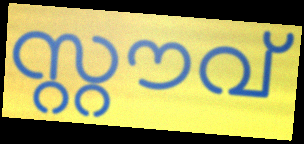
സ്റ്റൗവ്